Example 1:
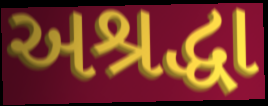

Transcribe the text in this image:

અશ્રદ્ધા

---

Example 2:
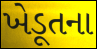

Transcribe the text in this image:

ખેડૂતના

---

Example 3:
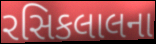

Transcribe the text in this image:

રસિકલાલના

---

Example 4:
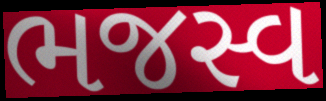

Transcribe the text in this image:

ભજસ્વ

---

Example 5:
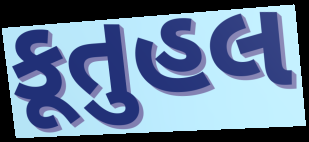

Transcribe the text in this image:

કૂતુહલ